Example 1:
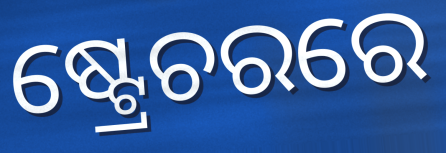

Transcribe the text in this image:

ଷ୍ଟ୍ରେଚରରେ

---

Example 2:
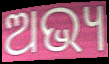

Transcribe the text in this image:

ଅଭ୍ୟ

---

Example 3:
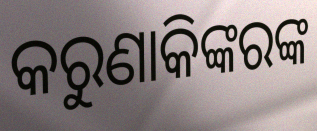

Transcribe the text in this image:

କରୁଣାକିଙ୍କରଙ୍କ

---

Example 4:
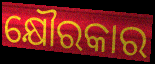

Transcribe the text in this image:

କ୍ଷୌରକାର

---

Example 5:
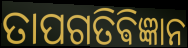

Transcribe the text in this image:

ତାପଗତିଵିଜ୍ଞାନ